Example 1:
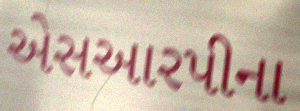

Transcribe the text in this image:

એસઆરપીના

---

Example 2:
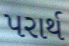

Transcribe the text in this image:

પરાર્થ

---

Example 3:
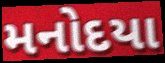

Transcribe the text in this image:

મનોદયા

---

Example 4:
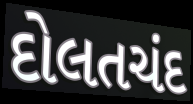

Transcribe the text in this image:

દોલતચંદ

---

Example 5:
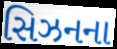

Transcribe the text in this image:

સિઝનના